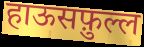
हाऊसफ़ुल्ल